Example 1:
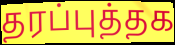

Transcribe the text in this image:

தரப்புத்தக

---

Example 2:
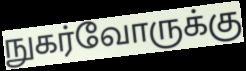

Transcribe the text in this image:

நுகர்வோருக்கு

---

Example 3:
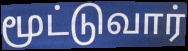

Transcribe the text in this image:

மூட்டுவார்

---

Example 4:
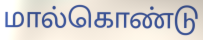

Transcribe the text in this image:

மால்கொண்டு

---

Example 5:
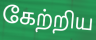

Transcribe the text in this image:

கேற்றிய